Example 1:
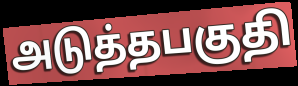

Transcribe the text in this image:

அடுத்தபகுதி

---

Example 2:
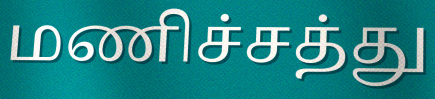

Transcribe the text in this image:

மணிச்சத்து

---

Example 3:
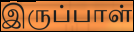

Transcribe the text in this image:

இருப்பாள்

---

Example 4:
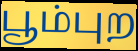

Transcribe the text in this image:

பூம்புற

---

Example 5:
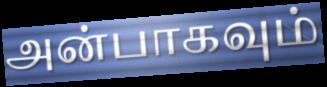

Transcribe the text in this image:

அன்பாகவும்